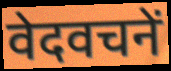
वेदवचनें